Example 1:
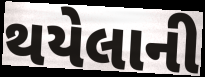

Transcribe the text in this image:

થયેલાની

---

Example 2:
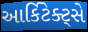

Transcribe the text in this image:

આર્કિટેક્ટ્સે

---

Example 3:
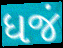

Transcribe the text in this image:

ધજં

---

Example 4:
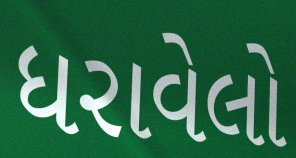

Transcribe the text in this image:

ધરાવેલો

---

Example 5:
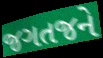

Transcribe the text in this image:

જગતજને